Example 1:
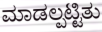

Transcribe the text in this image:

ಮಾಡಲ್ಪಟ್ಟಿತು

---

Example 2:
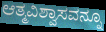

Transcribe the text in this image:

ಆತ್ಮವಿಶ್ವಾಸವನ್ನೂ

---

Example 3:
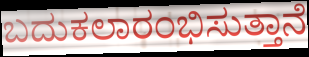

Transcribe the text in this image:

ಬದುಕಲಾರಂಭಿಸುತ್ತಾನೆ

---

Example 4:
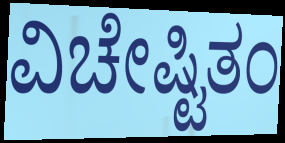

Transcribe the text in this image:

ವಿಚೇಷ್ಟಿತಂ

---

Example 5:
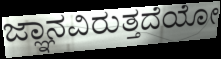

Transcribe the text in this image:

ಜ್ಞಾನವಿರುತ್ತದೆಯೋ